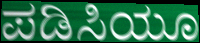
ಪಡಿಸಿಯೂ